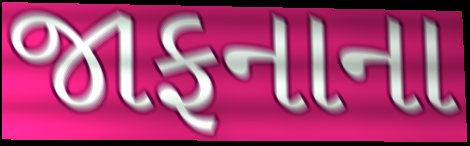
જાફનાના